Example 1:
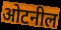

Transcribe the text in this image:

ओटनील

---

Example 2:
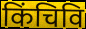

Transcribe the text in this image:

किंचिवि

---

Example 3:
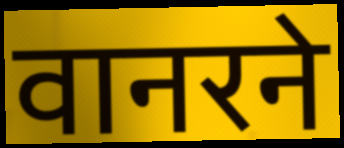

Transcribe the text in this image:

वानरने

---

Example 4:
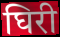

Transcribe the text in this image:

घिरी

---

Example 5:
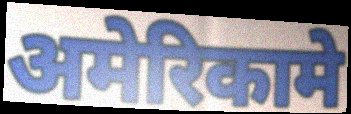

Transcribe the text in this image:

अमेरिकामे